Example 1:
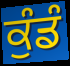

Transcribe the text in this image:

ਕੁੰਡੰ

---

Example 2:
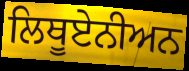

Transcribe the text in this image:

ਲਿਥੂਏਨੀਅਨ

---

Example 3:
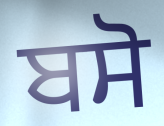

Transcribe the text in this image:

ਬਸੋ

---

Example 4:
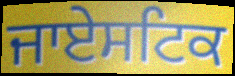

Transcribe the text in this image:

ਜਾਏਸਟਿਕ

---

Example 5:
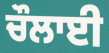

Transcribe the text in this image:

ਚੌਲਾਈ